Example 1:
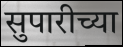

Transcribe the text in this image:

सुपारीच्या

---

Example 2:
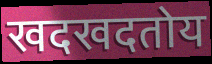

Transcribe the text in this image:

खदखदतोय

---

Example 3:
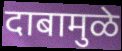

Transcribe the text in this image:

दाबामुळे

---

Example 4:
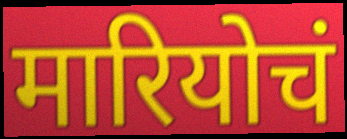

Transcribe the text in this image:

मारियोचं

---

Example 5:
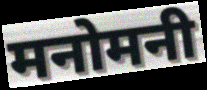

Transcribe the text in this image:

मनोमनी